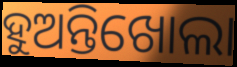
ହୁଅନ୍ତିଖୋଲା